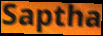
Saptha